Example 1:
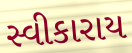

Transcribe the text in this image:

સ્વીકારાય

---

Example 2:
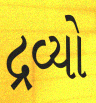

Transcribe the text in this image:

દ્રવ્યો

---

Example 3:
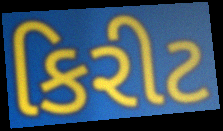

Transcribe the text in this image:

કિરીટ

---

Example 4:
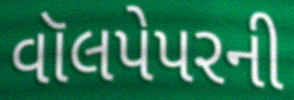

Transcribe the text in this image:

વૉલપેપરની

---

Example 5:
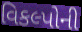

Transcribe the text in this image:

વિકલ્પોની